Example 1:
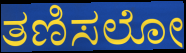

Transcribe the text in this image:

ತಣಿಸಲೋ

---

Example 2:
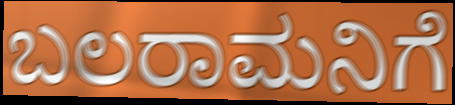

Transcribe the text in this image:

ಬಲರಾಮನಿಗೆ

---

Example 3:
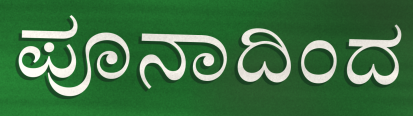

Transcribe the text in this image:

ಪೂನಾದಿಂದ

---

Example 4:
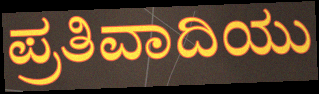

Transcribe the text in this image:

ಪ್ರತಿವಾದಿಯು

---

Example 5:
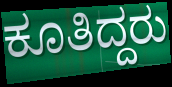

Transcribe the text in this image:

ಕೂತಿದ್ದರು